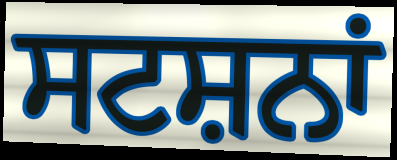
ਸਟਸ਼ਨਾਂ